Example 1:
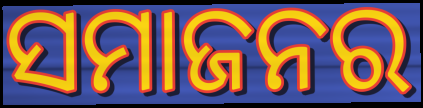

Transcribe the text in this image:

ସମାଜନର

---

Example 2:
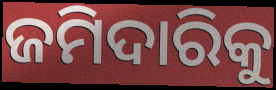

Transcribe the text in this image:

ଜମିଦାରିକୁ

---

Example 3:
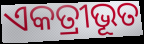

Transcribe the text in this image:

ଏକତ୍ରୀଭୂତ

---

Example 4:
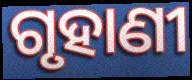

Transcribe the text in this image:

ଗୃହାଣୀ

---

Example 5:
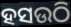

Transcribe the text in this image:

ହସଉଠି